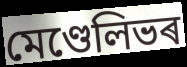
মেণ্ডেলিভৰ